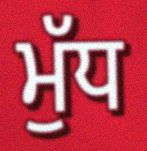
ਮੁੱਧ